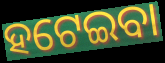
ହଟେଇବା